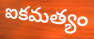
ఐకమత్యం